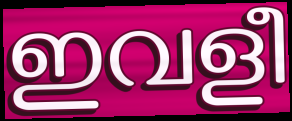
ഇവളീ